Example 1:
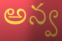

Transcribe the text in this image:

అన్వ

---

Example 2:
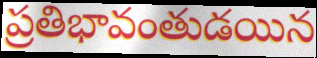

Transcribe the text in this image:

ప్రతిభావంతుడయిన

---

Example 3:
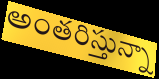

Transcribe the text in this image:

అంతరిస్తున్నా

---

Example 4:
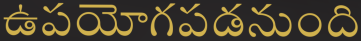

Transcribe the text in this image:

ఉపయోగపడనుంది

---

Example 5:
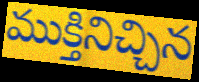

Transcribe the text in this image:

ముక్తినిచ్చిన